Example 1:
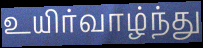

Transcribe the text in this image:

உயிர்வாழ்ந்து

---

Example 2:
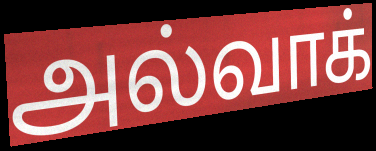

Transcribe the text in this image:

அல்வாக்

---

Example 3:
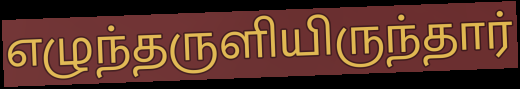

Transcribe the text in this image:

எழுந்தருளியிருந்தார்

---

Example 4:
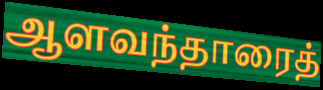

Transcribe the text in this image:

ஆளவந்தாரைத்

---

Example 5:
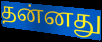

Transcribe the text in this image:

தன்னது